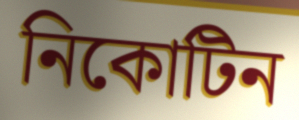
নিকোটিন